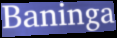
Baninga